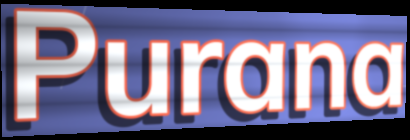
Purana